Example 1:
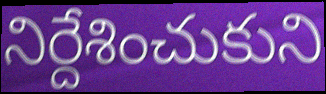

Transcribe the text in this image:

నిర్దేశించుకుని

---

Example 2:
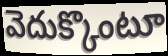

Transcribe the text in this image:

వెదుక్కొంటూ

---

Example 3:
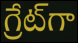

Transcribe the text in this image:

గ్రేట్‌గా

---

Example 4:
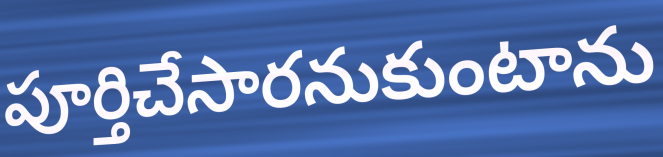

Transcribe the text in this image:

పూర్తిచేసారనుకుంటాను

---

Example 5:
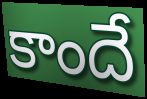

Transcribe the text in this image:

కాందే